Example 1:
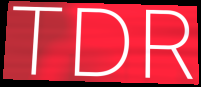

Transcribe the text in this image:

TDR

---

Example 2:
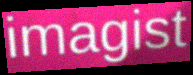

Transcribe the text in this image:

imagist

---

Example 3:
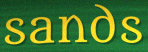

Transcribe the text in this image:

sands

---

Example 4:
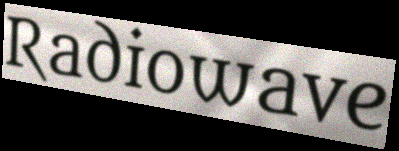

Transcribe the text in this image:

Radiowave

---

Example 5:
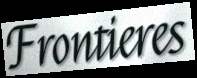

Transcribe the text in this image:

Frontieres